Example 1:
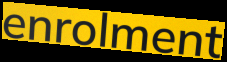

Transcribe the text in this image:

enrolment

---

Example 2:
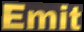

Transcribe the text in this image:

Emit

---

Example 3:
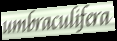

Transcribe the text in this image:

umbraculifera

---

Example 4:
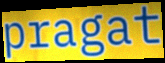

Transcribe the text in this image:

pragat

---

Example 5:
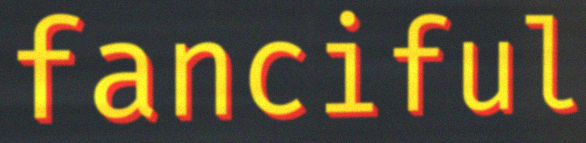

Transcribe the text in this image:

fanciful